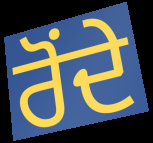
ਰੋਂਦੇ